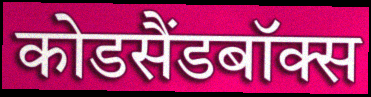
कोडसैंडबॉक्स